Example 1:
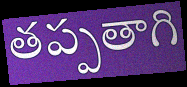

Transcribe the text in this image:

తప్పతాగి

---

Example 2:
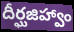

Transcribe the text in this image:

దీర్ఘజిహ్వాం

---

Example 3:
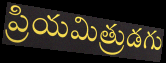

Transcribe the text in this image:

ప్రియమిత్రుడగు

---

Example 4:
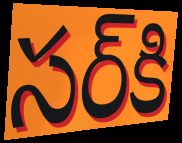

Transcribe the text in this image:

సర్‌కి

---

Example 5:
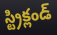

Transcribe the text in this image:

స్ట్రిక్లండ్